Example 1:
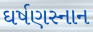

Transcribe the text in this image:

ઘર્ષણસ્નાન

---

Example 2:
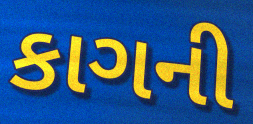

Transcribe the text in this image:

કાગની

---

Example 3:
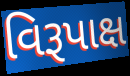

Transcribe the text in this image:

વિરૂપાક્ષ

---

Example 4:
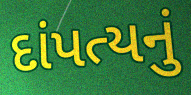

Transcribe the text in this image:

દાંપત્યનું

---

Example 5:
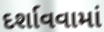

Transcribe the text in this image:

દર્શાવવામાં